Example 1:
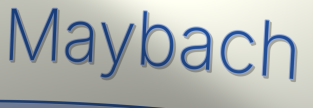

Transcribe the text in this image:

Maybach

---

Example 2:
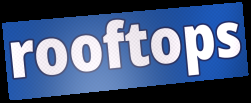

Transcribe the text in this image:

rooftops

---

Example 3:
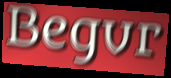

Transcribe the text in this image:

Begur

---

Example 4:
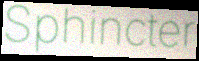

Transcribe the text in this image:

Sphincter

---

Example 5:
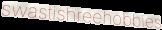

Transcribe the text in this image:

swastishreehobbies